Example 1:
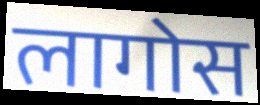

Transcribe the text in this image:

लागोस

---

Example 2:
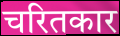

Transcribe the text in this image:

चरितकार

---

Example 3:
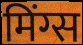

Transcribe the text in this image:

मिंग्स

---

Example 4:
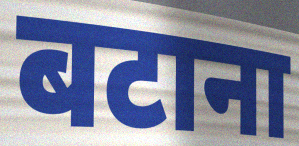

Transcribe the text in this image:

बटाना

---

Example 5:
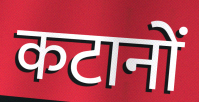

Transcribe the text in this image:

कटानों